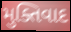
મુક્તિવાદ